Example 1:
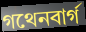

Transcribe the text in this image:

গথেনবার্গ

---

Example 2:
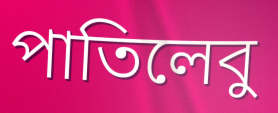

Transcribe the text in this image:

পাতিলেবু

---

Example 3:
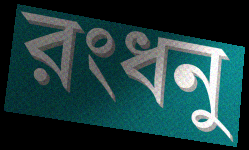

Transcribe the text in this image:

রংধনু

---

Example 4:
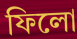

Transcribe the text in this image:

ফিলো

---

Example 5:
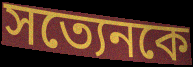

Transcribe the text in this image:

সত্যেনকে